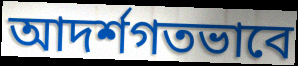
আদর্শগতভাবে